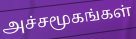
அச்சமூகங்கள்